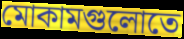
মোকামগুলোতে